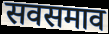
सवसमाव